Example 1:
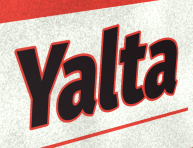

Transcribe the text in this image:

Yalta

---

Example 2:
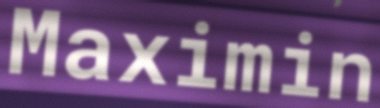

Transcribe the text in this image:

Maximin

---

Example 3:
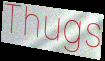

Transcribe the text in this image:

Thugs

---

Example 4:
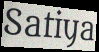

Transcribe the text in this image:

Satiya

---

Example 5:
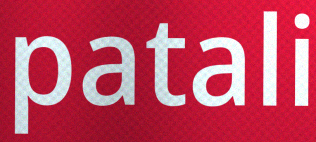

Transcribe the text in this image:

patali